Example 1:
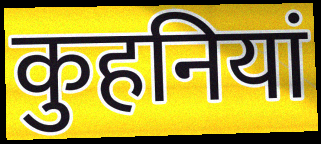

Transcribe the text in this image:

कुहनियां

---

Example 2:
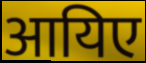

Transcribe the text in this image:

आयिए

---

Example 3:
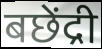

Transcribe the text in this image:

बछेंद्री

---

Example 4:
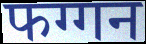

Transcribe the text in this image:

फग्‍गन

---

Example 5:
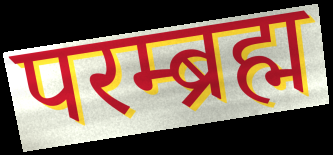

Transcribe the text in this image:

परम्ब्रह्म